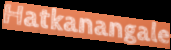
Hatkanangale